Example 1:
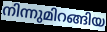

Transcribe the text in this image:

നിന്നുമിറങ്ങിയ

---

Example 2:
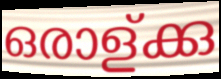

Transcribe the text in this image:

ഒരാള്ക്കു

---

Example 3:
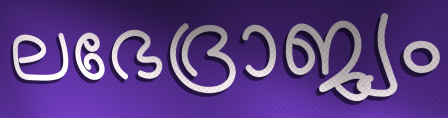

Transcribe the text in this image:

ലഭേദ്രാജ്യം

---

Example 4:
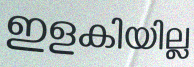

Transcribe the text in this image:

ഇളകിയില്ല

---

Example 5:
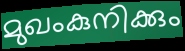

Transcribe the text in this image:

മുഖംകുനിക്കും